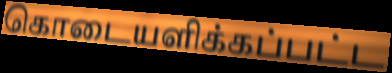
கொடையளிக்கப்பட்ட